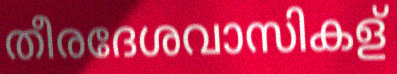
തീരദേശവാസികള്